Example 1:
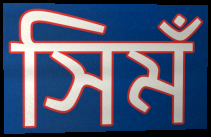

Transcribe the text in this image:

সিমঁ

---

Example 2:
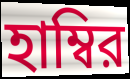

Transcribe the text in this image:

হাম্বির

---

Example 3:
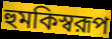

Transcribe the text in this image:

হুমকিস্বরূপ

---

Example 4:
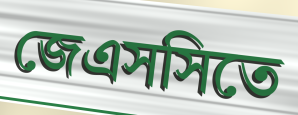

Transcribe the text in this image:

জেএসসিতে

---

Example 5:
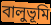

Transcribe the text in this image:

বালুভূমি